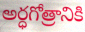
అర్ధగోత్రానికి